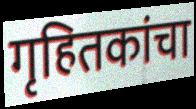
गृहितकांचा